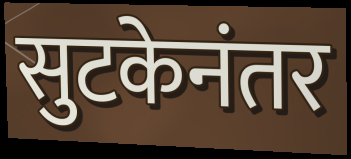
सुटकेनंतर